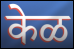
केळ